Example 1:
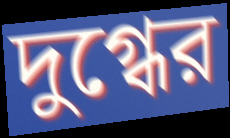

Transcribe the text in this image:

দুগ্ধের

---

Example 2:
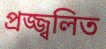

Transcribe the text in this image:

প্রজ্জ্বলিত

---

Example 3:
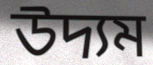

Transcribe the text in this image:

উদ্যম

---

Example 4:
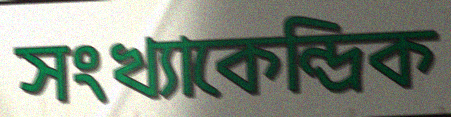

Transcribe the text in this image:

সংখ্যাকেন্দ্রিক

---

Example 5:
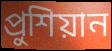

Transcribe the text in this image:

প্রুশিয়ান